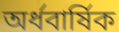
অর্ধবার্ষিক